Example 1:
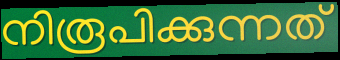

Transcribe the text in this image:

നിരൂപിക്കുന്നത്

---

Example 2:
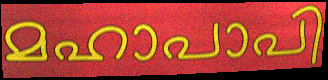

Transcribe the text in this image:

മഹാപാപി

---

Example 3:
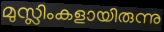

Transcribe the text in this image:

മുസ്ലിംകളായിരുന്നു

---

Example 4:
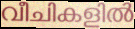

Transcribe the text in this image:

വീചികളിൽ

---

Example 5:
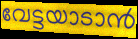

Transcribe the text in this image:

വേട്ടയാടാൻ